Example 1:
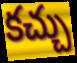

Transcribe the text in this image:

కచ్చు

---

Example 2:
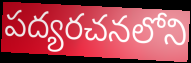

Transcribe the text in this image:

పద్యరచనలోని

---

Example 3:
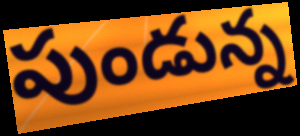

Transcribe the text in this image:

పుండున్న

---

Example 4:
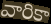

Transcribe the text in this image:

వారికా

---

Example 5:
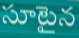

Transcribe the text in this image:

సూటైన